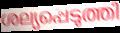
ശല്യപ്പെടുത്തി